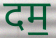
दम॒